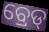
ବ୍ରେଡ୍